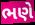
ભણે